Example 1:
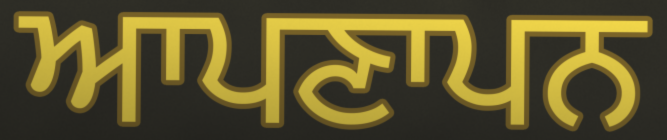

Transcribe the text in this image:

ਆਪਣਾਪਨ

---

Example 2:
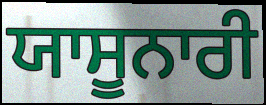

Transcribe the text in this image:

ਯਾਸੂਨਾਰੀ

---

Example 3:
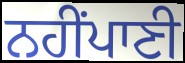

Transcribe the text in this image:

ਨਹੀਂਪਾਣੀ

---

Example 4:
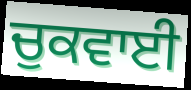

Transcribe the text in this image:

ਚੁਕਵਾਈ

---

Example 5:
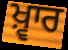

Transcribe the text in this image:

ਖ਼੍ਵਾਰ